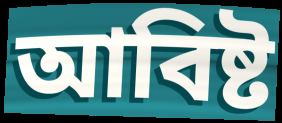
আবিষ্ট